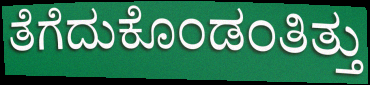
ತೆಗೆದುಕೊಂಡಂತಿತ್ತು